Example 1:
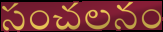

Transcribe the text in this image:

సంచలనం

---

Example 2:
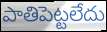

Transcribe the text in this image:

పాతిపెట్టలేదు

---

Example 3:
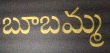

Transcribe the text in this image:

బూబమ్మ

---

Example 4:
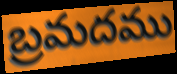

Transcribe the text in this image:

బ్రమదము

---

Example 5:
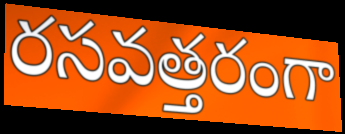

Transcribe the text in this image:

రసవత్తరంగా